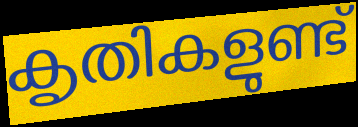
കൃതികളുണ്ട്